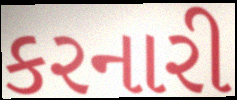
કરનારી